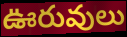
ఊరువులు